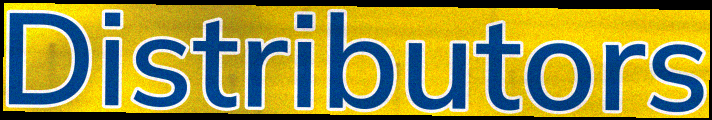
Distributors